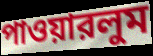
পাওয়ারলুম